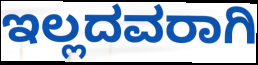
ಇಲ್ಲದವರಾಗಿ